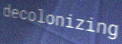
decolonizing